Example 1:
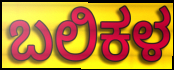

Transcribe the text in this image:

ಬಲಿಕಳ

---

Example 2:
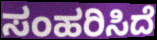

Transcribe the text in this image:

ಸಂಹರಿಸಿದೆ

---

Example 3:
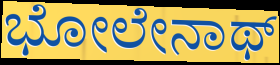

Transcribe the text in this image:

ಭೋಲೇನಾಥ್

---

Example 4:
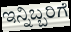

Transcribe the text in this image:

ಇನ್ನಿಬ್ಬರಿಗೆ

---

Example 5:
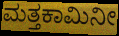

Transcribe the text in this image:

ಮತ್ತಕಾಮಿನೀ